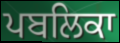
ਪਬਲਿਕਾ